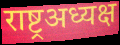
राष्ट्रअध्यक्ष